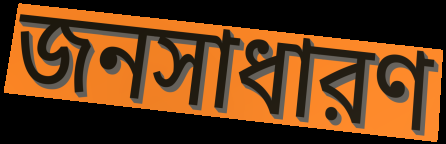
জনসাধারণ